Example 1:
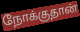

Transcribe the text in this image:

நோக்குதான்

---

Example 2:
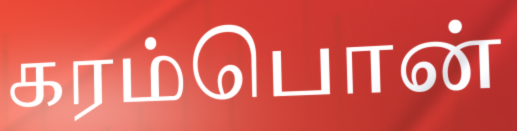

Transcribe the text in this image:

கரம்பொன்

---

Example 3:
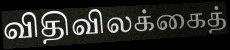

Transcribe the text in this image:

விதிவிலக்கைத்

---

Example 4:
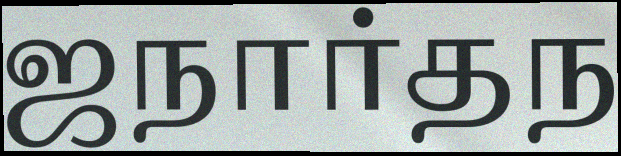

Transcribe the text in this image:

ஜநார்தந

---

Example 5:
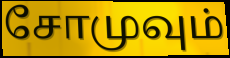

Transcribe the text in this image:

சோமுவும்